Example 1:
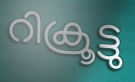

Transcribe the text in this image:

റിക്രൂട്ടു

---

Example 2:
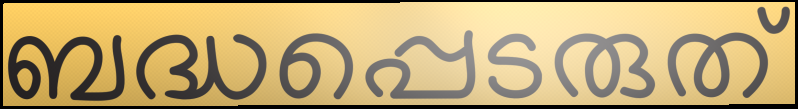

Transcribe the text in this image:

ബദ്ധപ്പെടരുത്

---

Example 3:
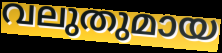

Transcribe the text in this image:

വലുതുമായ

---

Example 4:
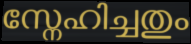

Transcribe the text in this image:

സ്നേഹിച്ചതും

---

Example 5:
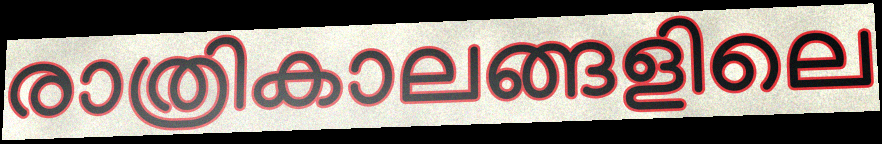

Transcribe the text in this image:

രാത്രികാലങ്ങളിലെ